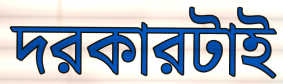
দরকারটাই